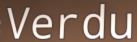
Verdu